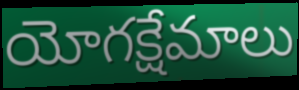
యోగక్షేమాలు